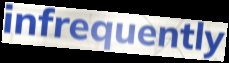
infrequently